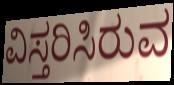
ವಿಸ್ತರಿಸಿರುವ